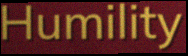
Humility